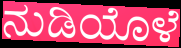
ನುಡಿಯೊಳೆ